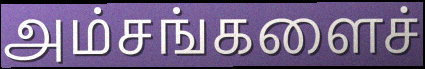
அம்சங்களைச்